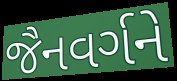
જૈનવર્ગને